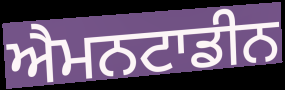
ਐਮਨਟਾਡੀਨ